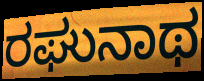
ರಘುನಾಥ